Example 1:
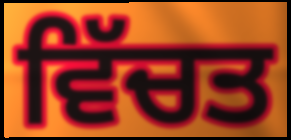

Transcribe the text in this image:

ਵਿੱਚਤ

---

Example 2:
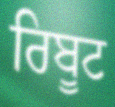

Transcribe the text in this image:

ਰਿਬੂਟ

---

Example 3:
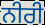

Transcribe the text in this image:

ਨੀਰੀ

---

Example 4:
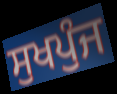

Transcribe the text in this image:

ਸੁਖਪੁੰਜ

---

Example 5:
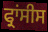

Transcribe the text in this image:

ਫ੍ਰਾਂਸੀਸ